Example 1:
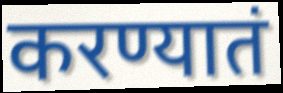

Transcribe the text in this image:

करण्यातं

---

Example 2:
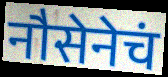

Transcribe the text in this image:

नौसेनेचं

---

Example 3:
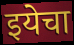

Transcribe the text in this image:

इयेचा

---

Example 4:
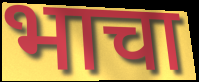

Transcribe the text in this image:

भाचा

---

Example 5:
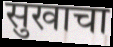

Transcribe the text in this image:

सुखाचा